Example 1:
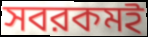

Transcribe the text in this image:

সবরকমই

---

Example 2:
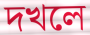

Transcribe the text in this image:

দখলে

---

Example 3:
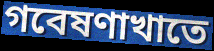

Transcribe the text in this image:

গবেষণাখাতে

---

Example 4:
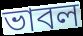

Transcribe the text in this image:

ভাবল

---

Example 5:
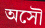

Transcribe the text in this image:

অসৌ